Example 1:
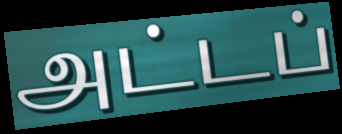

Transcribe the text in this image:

அட்டப்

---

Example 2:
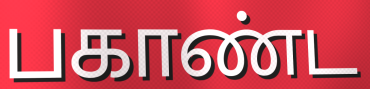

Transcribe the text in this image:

பகாண்ட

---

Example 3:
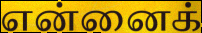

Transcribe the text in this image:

என்னைக்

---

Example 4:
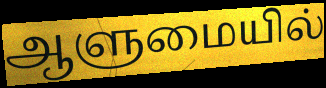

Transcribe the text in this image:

ஆளுமையில்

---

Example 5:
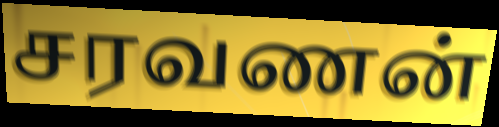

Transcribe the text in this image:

சரவணன்